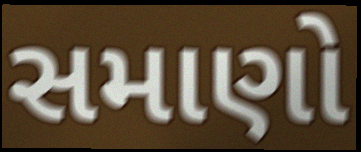
સમાણો